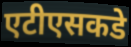
एटीएसकडे